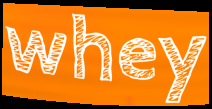
whey